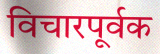
विचारपूर्वक